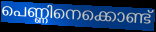
പെണ്ണിനെക്കൊണ്ട്